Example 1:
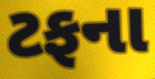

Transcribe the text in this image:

ટફના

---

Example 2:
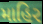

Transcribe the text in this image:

માહિર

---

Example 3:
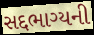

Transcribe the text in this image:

સદ્દભાગ્યની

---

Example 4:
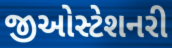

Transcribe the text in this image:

જીઓસ્ટેશનરી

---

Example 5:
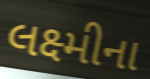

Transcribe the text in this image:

લક્ષ્મીના